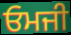
ਓਮਜੀ